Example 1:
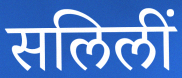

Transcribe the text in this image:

सलिलीं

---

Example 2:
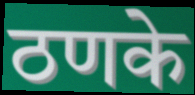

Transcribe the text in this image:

ठणके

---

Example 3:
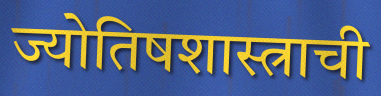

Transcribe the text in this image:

ज्योतिषशास्त्राची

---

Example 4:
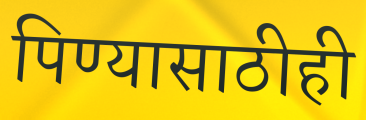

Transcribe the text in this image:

पिण्यासाठीही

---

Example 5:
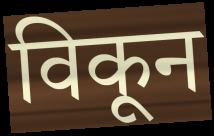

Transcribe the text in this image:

विकून